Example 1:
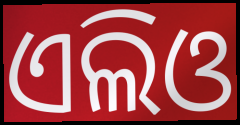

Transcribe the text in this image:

ଏଲିଓ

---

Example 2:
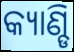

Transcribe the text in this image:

କ୍ୟାଣ୍ଡି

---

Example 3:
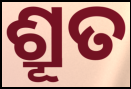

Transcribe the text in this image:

ଶ୍ରୂତ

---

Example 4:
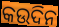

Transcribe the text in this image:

କଉଦିନ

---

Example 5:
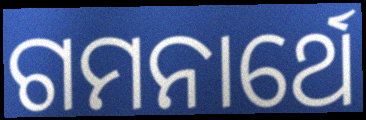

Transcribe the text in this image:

ଗମନାର୍ଥେ